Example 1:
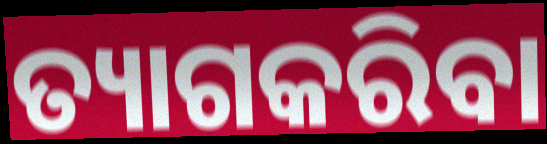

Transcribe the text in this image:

ତ୍ୟାଗକରିବା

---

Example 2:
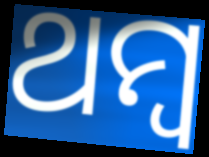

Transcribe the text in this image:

ଥମ୍ବ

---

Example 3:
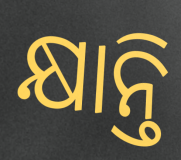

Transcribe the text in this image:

କ୍ଷାନ୍ତି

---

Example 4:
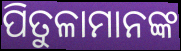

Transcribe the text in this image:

ପିତୁଳାମାନଙ୍କ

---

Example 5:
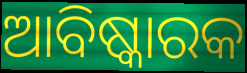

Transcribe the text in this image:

ଆବିଷ୍କାରକ